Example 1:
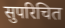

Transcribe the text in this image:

सुपरिचित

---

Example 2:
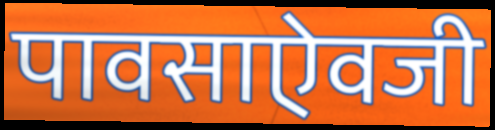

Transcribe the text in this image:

पावसाऐवजी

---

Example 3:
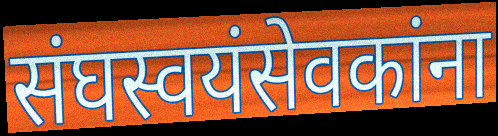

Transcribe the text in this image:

संघस्वयंसेवकांना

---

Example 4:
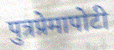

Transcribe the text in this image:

पुत्रप्रेमापोटी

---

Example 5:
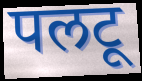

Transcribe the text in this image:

पलटू